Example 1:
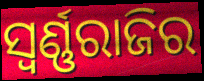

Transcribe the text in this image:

ସ୍ଵର୍ଣ୍ଣରାଜିର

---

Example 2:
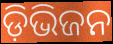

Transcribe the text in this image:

ଡ଼ିଭିଜନ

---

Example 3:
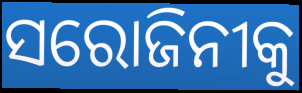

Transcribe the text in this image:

ସରୋଜିନୀକୁ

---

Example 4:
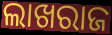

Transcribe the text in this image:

ଲାଖରାଜ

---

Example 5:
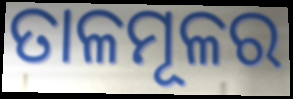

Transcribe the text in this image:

ତାଳମୂଳର